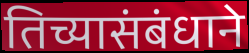
तिच्यासंबंधाने